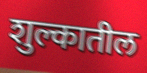
शुल्कातील